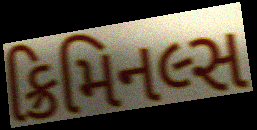
ક્રિમિનલ્સ